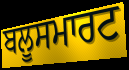
ਬਲੂਸਮਾਰਟ